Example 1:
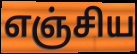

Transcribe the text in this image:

எஞ்சிய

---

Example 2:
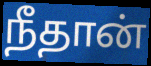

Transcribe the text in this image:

நீதான்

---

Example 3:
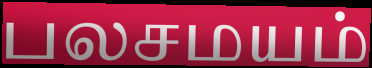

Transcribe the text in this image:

பலசமயம்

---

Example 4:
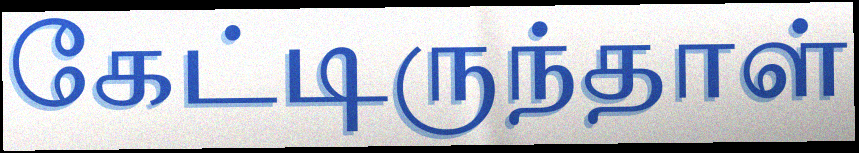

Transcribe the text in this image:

கேட்டிருந்தாள்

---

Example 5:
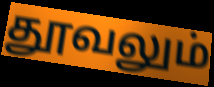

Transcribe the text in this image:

தூவலும்